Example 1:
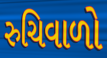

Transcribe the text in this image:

રુચિવાળો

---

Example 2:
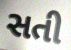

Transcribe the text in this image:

સતી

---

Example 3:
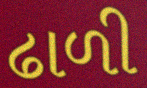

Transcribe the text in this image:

ઢાળી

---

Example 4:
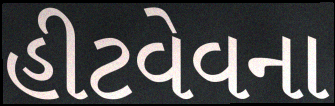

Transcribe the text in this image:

હીટવેવના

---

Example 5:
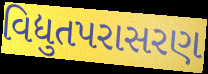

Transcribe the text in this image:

વિદ્યુતપરાસરણ